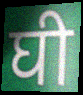
घी